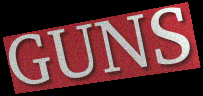
GUNS